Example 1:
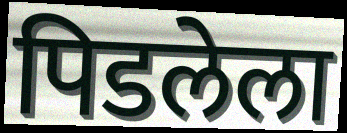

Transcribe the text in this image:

पिडलेला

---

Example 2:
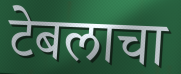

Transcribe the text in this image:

टेबलाचा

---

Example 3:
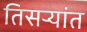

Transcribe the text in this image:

तिसर्‍यांत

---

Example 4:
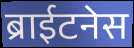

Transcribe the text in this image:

ब्राईटनेस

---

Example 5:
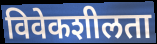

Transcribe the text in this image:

विवेकशीलता